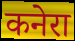
कनेरा